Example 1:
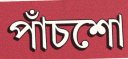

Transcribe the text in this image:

পাঁচশো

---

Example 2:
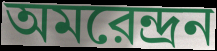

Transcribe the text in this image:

অমরেন্দ্রন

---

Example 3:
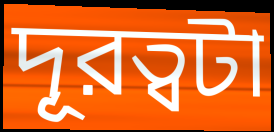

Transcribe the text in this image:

দূরত্বটা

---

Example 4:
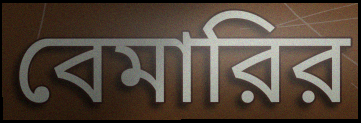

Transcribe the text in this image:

বেমারির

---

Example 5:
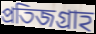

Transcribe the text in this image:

প্রতিজগ্রাহ